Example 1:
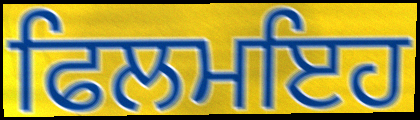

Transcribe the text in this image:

ਫਿਲਮਇਹ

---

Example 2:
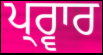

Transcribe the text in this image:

ਪ੍ਰ੍ਵਾਰ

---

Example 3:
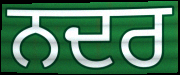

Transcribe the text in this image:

ਨਦਰ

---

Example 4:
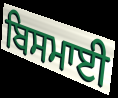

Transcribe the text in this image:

ਬਿਸਮਾਈ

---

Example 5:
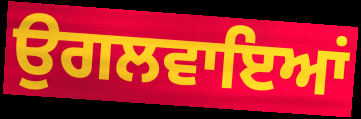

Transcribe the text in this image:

ਉਗਲਵਾਇਆਂ